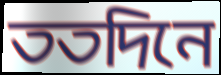
ততদিনে